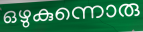
ഒഴുകുന്നൊരു